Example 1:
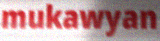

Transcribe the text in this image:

mukawyan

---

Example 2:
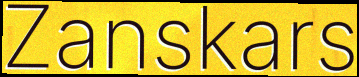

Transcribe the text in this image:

Zanskars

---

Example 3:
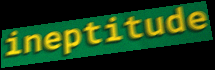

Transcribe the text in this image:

ineptitude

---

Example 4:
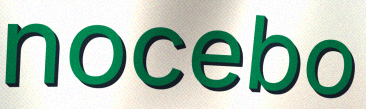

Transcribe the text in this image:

nocebo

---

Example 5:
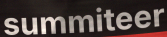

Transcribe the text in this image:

summiteer